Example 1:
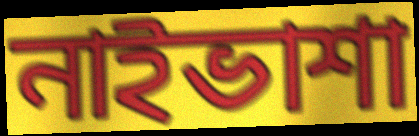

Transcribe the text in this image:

নাইভাশা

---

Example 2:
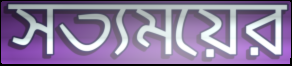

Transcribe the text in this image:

সত্যময়ের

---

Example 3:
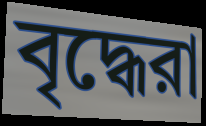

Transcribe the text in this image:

বৃদ্ধেরা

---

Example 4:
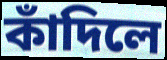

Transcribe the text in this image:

কাঁদিলে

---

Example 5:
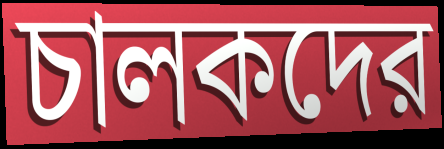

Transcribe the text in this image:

চালকদের